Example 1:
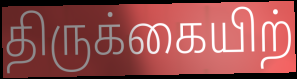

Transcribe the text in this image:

திருக்கையிற்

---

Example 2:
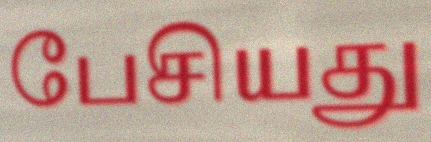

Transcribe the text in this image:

பேசியது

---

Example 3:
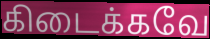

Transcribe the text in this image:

கிடைக்கவே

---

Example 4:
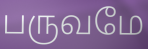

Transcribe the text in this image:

பருவமே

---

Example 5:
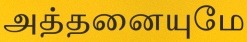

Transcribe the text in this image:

அத்தனையுமே